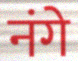
नंगे